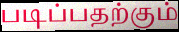
படிப்பதற்கும்